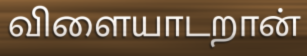
விளையாடறான்